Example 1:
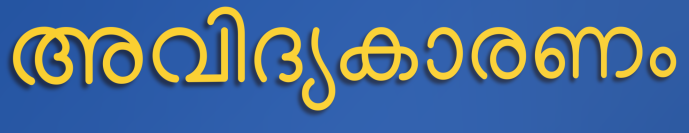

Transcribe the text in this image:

അവിദ്യകാരണം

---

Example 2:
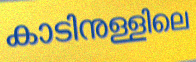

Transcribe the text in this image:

കാടിനുള്ളിലെ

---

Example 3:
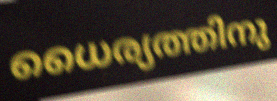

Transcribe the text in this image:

ധൈര്യത്തിനു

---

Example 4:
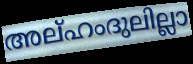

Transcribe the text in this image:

അല്ഹംദുലില്ലാ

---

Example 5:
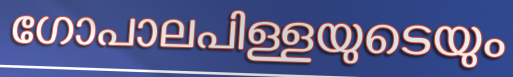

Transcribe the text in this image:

ഗോപാലപിള്ളയുടെയും